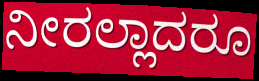
ನೀರಲ್ಲಾದರೂ